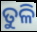
ତୁଳି